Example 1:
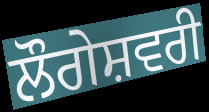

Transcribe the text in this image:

ਲੌਗੇਸ਼ਵਰੀ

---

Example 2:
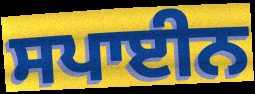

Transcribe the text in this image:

ਸਪਾਈਨ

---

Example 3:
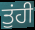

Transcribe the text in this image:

ਤੁਂਹੀ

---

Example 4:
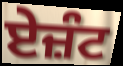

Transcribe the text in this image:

ਏਜ਼ੰਟ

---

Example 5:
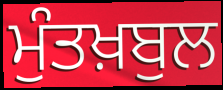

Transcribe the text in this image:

ਮੁੰਤਖ਼ਬੁਲ